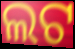
ଲଟ